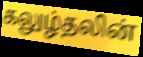
கலுழ்தலின்